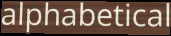
alphabetical